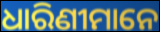
ଧାରିଣୀମାନେ